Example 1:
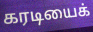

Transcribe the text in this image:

கரடியைக்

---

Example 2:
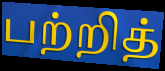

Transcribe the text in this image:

பற்றித்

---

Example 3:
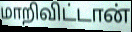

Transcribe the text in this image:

மாறிவிட்டான்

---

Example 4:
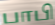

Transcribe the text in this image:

பாபி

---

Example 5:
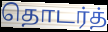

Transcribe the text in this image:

தொடர்த்